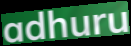
adhuru